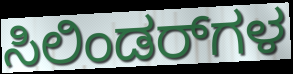
ಸಿಲಿಂಡರ್‌ಗಳ